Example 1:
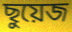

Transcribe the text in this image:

ছুয়েজ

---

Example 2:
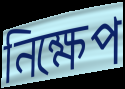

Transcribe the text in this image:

নিক্ষেপ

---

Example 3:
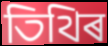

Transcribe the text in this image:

তিথিৰ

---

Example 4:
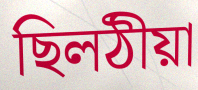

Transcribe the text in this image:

ছিলঠীয়া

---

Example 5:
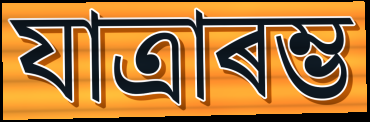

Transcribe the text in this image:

যাত্ৰাৰম্ভ